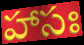
హాసః